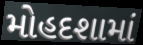
મોહદશામાં